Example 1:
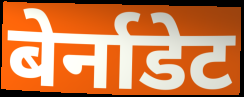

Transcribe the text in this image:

बेर्नाडेट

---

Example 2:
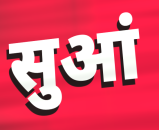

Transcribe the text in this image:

सुआं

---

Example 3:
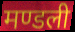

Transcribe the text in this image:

मण्डली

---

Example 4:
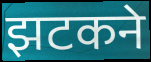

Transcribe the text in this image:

झटकने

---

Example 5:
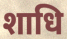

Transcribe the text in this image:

शाधि